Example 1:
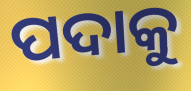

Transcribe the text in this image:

ପଦାକୁ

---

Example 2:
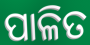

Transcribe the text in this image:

ପାଳିତ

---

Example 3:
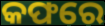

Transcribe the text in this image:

କଫରେ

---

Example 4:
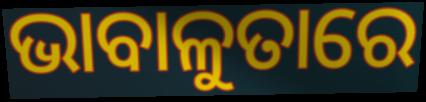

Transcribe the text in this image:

ଭାବାଳୁତାରେ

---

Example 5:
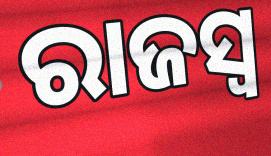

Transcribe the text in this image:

ରାଜସ୍ୱ